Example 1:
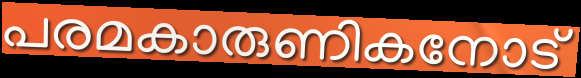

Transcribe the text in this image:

പരമകാരുണികനോട്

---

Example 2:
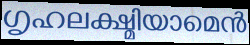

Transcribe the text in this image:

ഗൃഹലക്ഷ്മിയാമെൻ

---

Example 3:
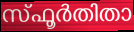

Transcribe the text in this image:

സ്ഫൂർതിതാ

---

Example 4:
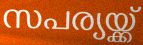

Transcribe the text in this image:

സപര്യയ്ക്ക്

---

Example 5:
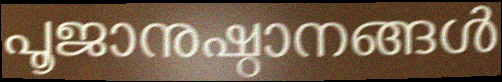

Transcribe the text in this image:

പൂജാനുഷ്ഠാനങ്ങൾ